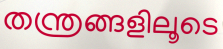
തന്ത്രങ്ങളിലൂടെ